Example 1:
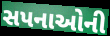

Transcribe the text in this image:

સપનાઓની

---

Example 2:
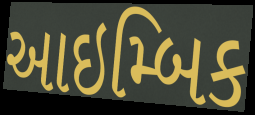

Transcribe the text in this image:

આઇમ્બિક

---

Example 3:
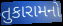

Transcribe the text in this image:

તુકારામનો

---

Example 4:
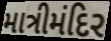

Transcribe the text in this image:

માત્રીમંદિર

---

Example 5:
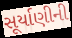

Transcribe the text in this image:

સૂર્યાણીની